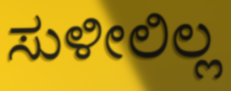
ಸುಳೀಲಿಲ್ಲ